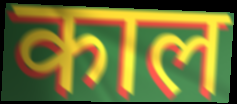
काल